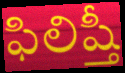
ఫిలిష్తీ